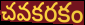
చవకరకం